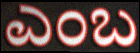
ಎಂಬ